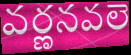
వర్ణనవలె